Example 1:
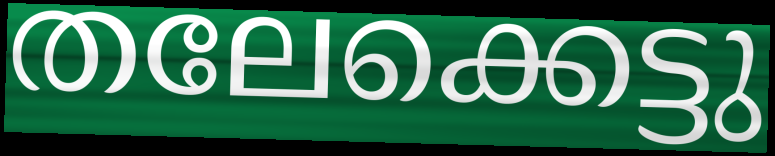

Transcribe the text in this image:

തലേക്കെട്ടു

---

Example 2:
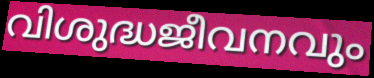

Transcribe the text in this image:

വിശുദ്ധജീവനവും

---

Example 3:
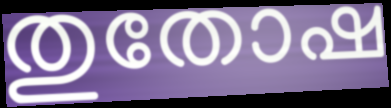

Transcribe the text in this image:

തുതോഷ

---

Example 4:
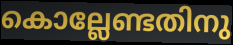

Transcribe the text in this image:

കൊല്ലേണ്ടതിനു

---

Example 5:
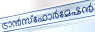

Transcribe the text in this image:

ട്രാൻസ്ഫോർമേഷൻ